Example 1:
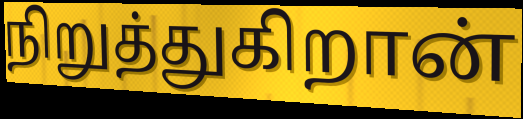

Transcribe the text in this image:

நிறுத்துகிறான்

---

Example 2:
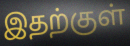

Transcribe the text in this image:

இதற்குள்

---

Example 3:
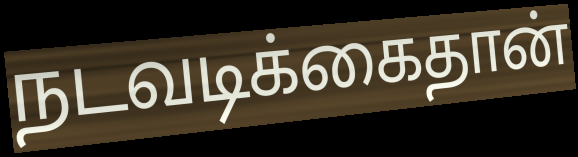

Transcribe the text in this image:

நடவடிக்கைதான்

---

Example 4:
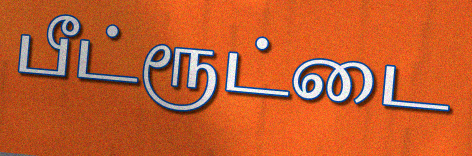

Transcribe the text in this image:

பீட்ரூட்டை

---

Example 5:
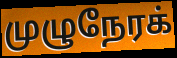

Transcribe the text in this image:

முழுநேரக்